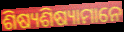
ଶିଷ୍ୟଶିଷ୍ୟାମାନେ